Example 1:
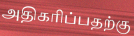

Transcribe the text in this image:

அதிகரிப்பதற்கு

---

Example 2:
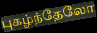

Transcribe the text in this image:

புகழ்ந்தேலோ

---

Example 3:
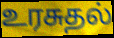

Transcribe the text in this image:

உரசுதல்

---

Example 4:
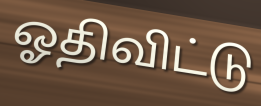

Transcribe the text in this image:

ஓதிவிட்டு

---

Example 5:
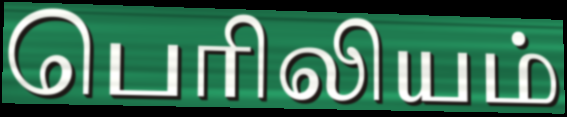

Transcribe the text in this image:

பெரிலியம்